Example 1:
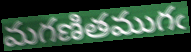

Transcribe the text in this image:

మగణితముగఁ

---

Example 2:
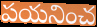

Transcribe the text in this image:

పయనించ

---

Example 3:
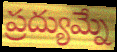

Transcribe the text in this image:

ప్రద్యుమ్నే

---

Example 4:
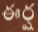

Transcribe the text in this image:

ఈర్ష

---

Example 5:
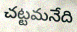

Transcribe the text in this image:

చట్టమనేది